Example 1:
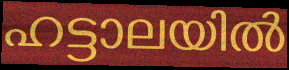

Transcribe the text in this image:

ഹട്ടാലയിൽ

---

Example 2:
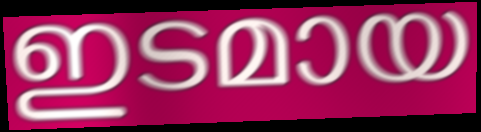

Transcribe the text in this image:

ഇടമായ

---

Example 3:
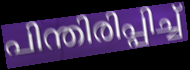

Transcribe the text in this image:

പിന്തിരിപ്പിച്ച്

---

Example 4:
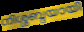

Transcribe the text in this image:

നിശ്ശബ്ദയായി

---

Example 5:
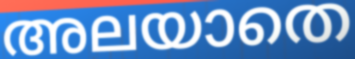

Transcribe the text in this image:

അലയാതെ